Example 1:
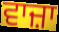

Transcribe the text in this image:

ਵਾਜ਼ਾ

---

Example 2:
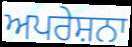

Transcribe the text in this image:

ਅਪਰੇਸ਼ਨਾ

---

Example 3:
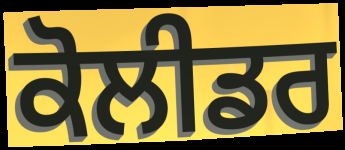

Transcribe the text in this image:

ਕੋਲੀਡਰ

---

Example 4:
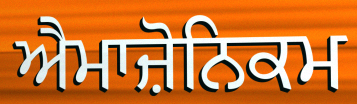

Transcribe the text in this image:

ਐਮਾਜ਼ੋਨਿਕਮ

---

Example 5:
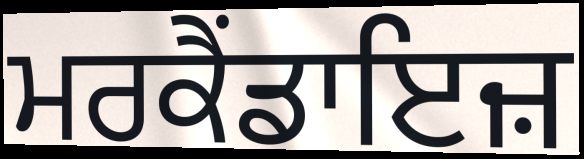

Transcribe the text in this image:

ਮਰਕੈਂਡਾਇਜ਼